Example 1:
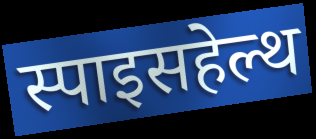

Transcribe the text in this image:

स्पाइसहेल्थ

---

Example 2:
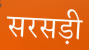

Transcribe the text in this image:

सरसड़ी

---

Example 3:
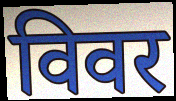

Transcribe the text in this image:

विवर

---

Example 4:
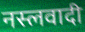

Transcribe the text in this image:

नस्लवादी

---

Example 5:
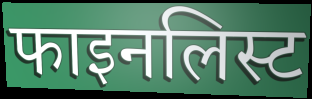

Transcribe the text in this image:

फाइनलिस्ट